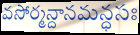
వసోర్మన్దానమన్ధసః